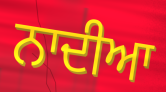
ਨਾਦੀਆ